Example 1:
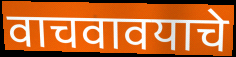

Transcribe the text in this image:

वाचवावयाचे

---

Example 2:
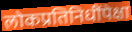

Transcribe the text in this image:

लोकप्रतिनिधींपेक्षा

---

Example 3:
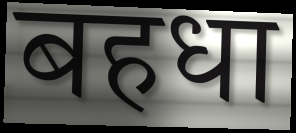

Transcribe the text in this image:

बहधा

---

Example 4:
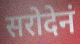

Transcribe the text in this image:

सरोदेनं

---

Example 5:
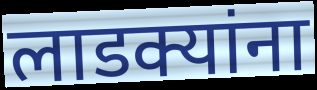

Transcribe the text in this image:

लाडक्यांना